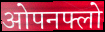
ओपनफ्लो